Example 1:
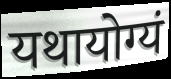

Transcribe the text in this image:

यथायोग्यं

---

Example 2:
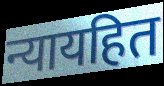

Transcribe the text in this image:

न्यायहित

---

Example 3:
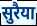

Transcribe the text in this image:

सुरैया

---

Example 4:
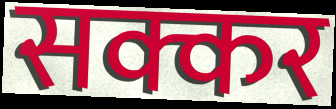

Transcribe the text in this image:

सक्कर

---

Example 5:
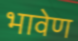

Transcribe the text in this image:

भावेण